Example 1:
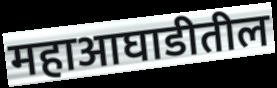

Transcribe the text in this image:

महाआघाडीतील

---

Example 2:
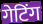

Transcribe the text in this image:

गेटिंग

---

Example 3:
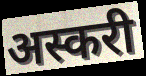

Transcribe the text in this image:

अस्करी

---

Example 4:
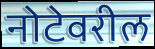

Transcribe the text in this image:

नोटेवरील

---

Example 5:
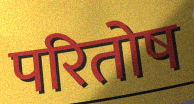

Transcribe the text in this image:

परितोष